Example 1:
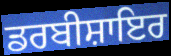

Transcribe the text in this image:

ਡਰਬੀਸ਼ਾਇਰ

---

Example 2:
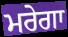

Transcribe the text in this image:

ਮਰੇਗਾ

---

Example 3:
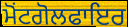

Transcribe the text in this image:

ਮੋਂਟਗੋਲਫਾਇਰ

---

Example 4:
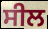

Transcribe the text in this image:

ਸੀਲ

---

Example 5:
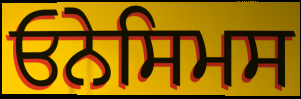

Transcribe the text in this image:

ਓਨੇਸਿਮਸ